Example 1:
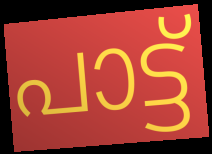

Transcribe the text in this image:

പാട്ട്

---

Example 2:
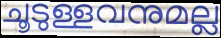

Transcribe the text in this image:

ചൂടുള്ളവനുമല്ല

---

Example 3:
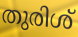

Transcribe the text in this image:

തുരിശ്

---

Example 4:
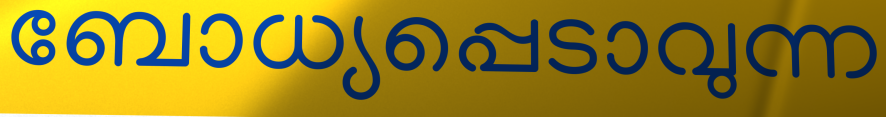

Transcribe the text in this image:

ബോധ്യപ്പെടാവുന്ന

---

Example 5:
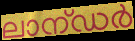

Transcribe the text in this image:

ലാന്ഡർ